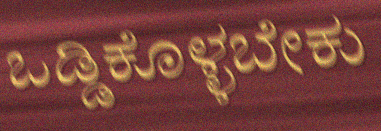
ಒಡ್ಡಿಕೊಳ್ಳಬೇಕು